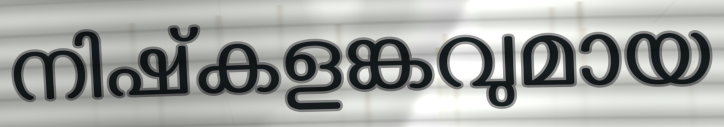
നിഷ്‌കളങ്കവുമായ